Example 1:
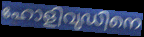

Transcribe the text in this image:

ഹോളിവുഡിനെ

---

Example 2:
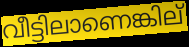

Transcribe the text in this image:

വീട്ടിലാണെങ്കില്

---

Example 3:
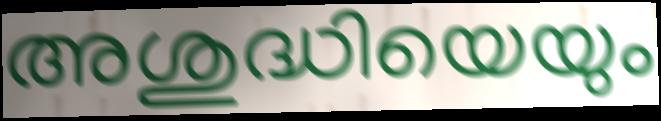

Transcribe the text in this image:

അശുദ്ധിയെയും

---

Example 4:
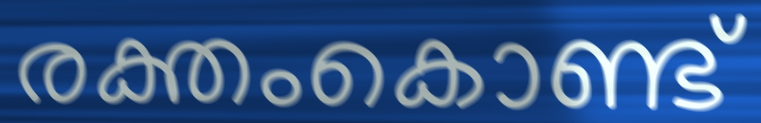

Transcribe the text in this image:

രക്തംകൊണ്ട്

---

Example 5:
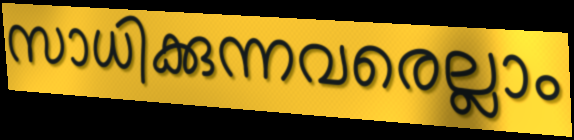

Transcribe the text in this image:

സാധിക്കുന്നവരെല്ലാം